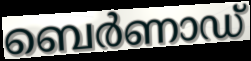
ബെർണാഡ്